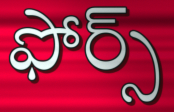
ఫోర్స్